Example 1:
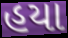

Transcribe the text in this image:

હયા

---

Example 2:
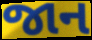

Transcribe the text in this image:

જાન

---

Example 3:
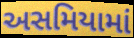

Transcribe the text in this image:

અસમિયામાં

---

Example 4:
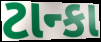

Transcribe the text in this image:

ટાન્કા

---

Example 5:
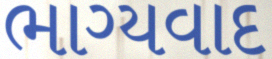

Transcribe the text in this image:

ભાગ્યવાદ